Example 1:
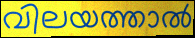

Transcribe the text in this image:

വിലയത്താൽ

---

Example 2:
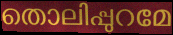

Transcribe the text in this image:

തൊലിപ്പുറമേ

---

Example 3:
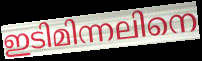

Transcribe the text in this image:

ഇടിമിന്നലിനെ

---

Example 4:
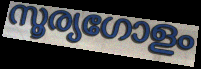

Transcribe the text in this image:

സൂര്യഗോളം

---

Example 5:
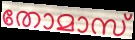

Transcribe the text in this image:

തോമാസ്